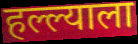
हल्ल्याला